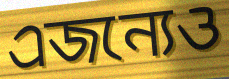
এজন্যেও